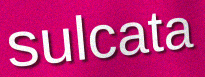
sulcata